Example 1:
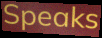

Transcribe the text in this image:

Speaks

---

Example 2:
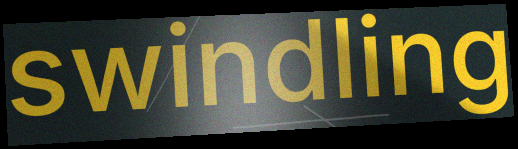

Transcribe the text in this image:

swindling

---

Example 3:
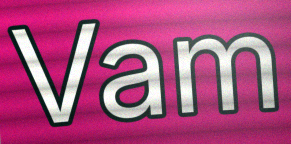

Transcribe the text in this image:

Vam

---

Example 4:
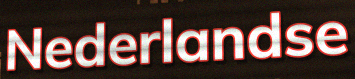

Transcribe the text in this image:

Nederlandse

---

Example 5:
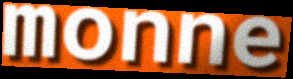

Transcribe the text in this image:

monne